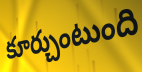
కూర్చుంటుంది